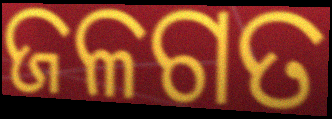
ଜଳଗତ